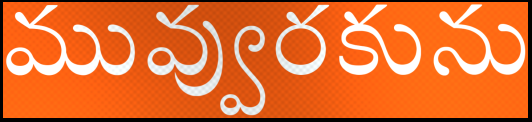
మువ్వురకును